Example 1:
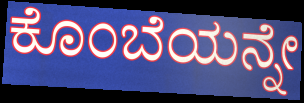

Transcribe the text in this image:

ಕೊಂಬೆಯನ್ನೇ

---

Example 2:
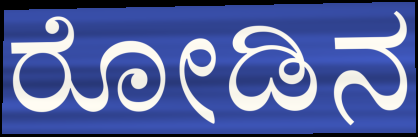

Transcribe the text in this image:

ರೋಡಿನ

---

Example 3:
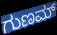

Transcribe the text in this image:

ಗುಣಮ್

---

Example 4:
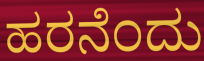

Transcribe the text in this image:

ಹರನೆಂದು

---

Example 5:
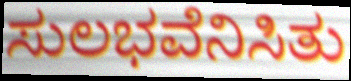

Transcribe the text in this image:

ಸುಲಭವೆನಿಸಿತು